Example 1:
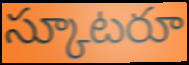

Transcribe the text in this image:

స్కూటరూ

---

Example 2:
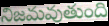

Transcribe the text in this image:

నిజమవుతుంది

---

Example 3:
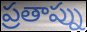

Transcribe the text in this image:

ప్రతాప్ను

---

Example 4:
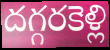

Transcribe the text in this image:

దగ్గరకెళ్లి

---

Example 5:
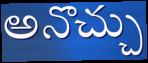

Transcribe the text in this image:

అనొచ్చు